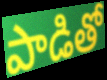
పాడితో